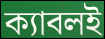
ক্যাবলই